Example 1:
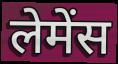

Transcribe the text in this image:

लेमेंस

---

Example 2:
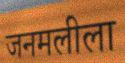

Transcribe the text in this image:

जनमलीला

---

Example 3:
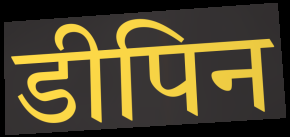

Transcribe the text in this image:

डीपिन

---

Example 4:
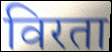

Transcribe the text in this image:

विरता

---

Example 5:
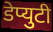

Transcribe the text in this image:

डेप्युटी